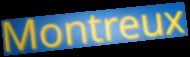
Montreux